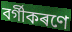
বৰ্গীকৰণে